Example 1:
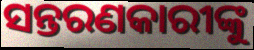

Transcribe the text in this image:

ସନ୍ତରଣକାରୀଙ୍କୁ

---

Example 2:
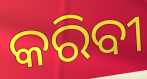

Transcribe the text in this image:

କରିବୀ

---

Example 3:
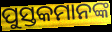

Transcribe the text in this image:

ପୁସ୍ତକମାନଙ୍କ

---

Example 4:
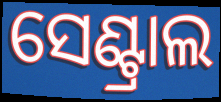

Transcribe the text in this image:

ସେଣ୍ଟ୍ରାଲ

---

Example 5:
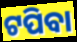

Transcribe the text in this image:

ଟପିବା